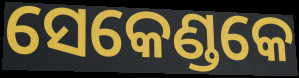
ସେକେଣ୍ଡକେ